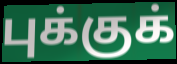
புக்குக்